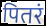
पितरं